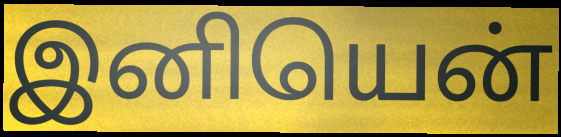
இனியென்